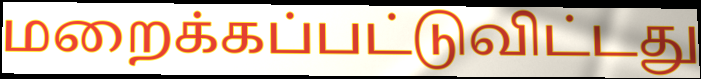
மறைக்கப்பட்டுவிட்டது